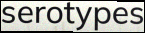
serotypes